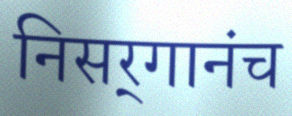
निसर्गानंच